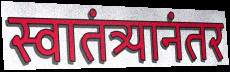
स्वातंत्र्यानंतर